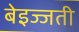
बेइज्जती